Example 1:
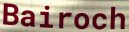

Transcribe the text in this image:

Bairoch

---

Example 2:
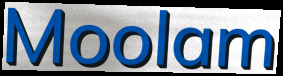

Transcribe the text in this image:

Moolam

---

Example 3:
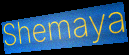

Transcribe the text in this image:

Shemaya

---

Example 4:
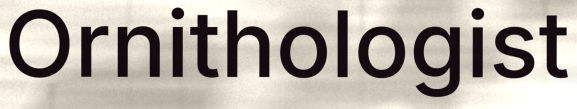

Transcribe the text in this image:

Ornithologist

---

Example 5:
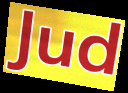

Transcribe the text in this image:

Jud